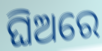
ଘିଅରେ